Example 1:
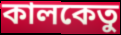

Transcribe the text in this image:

কালকেতু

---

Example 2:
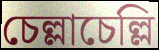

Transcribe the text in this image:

চেল্লাচেল্লি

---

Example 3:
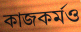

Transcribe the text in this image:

কাজকর্মও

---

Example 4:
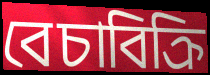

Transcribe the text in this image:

বেচাবিক্রি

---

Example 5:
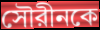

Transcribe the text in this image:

সৌরীনকে